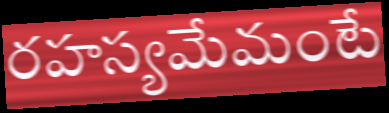
రహస్యమేమంటే